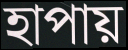
হাপায়